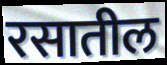
रसातील